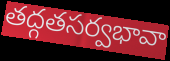
తద్గతసర్వభావా